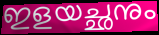
ഇളയച്ഛനും